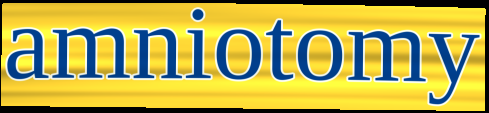
amniotomy